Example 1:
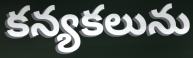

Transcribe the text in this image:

కన్యకలును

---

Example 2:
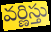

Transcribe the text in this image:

వర్ణిస్తు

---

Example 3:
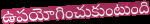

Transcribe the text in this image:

ఉపయోగించుకుంటుంది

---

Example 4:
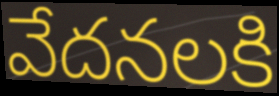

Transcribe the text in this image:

వేదనలకి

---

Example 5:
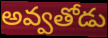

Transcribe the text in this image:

అవ్వతోడు